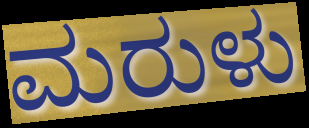
ಮರುಳು